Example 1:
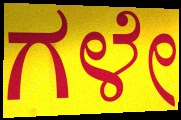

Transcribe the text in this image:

ಗಳೇ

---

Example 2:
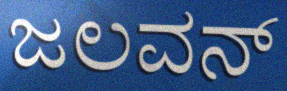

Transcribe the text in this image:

ಜಲವನ್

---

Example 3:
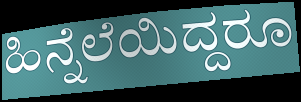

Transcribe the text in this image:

ಹಿನ್ನೆಲೆಯಿದ್ದರೂ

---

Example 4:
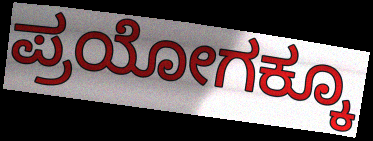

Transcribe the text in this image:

ಪ್ರಯೋಗಕ್ಕೂ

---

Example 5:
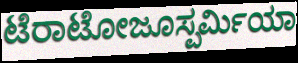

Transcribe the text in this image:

ಟೆರಾಟೋಜೂಸ್ಪರ್ಮಿಯಾ